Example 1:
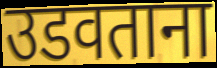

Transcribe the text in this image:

उडवताना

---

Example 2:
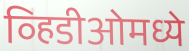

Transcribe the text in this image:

व्हिडीओमध्ये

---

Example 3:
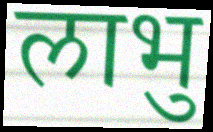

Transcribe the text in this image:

लाभु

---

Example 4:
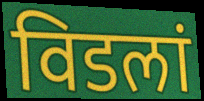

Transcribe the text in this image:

विडलां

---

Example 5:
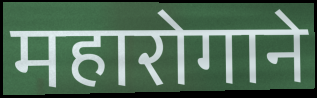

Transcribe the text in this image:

महारोगाने